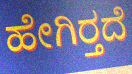
ಹೇಗಿರ್‍ತದೆ